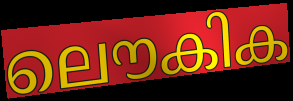
ലൌകിക